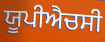
ਯੂਪੀਐਚਸੀ